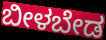
ಬೀಳಬೇಡ